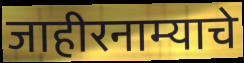
जाहीरनाम्याचे